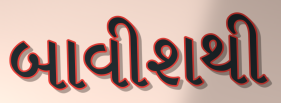
બાવીશથી